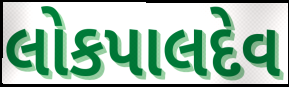
લોકપાલદેવ